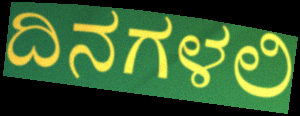
ದಿನಗಳಲಿ